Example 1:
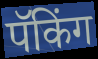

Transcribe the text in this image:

पॅकिंग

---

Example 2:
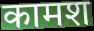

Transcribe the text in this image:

कामश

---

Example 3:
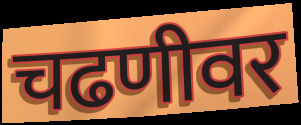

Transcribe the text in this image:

चढणीवर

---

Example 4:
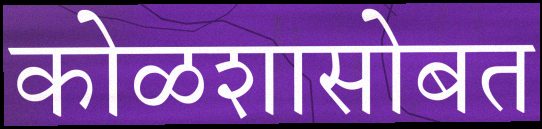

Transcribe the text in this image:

कोळशासोबत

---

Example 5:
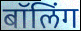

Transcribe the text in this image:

बॉलिंग